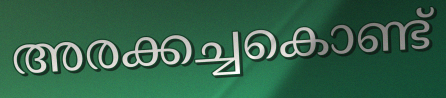
അരക്കച്ചകൊണ്ട്